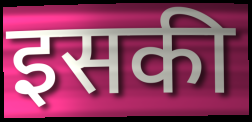
इसकी